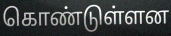
கொண்டுள்ளன